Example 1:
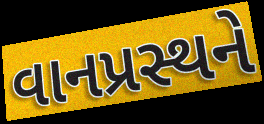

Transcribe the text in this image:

વાનપ્રસ્થને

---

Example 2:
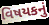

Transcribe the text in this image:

વિષયકનું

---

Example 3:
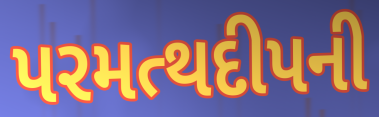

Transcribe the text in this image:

પરમત્થદીપની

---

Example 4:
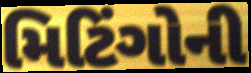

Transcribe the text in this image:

મિટિંગોની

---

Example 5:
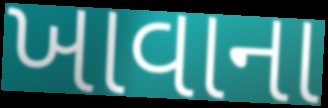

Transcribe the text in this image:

ખાવાના